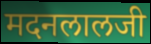
मदनलालजी